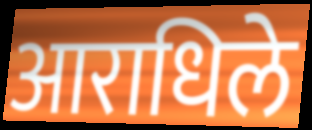
आराधिले